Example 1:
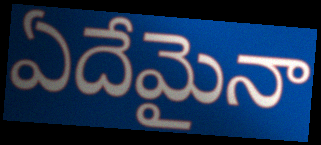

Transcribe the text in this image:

ఏదేమైనా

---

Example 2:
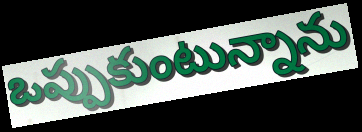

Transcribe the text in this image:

ఒప్పుకుంటున్నాను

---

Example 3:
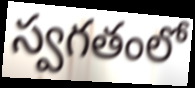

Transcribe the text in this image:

స్వగతంలో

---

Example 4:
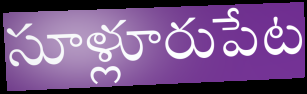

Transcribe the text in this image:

సూళ్లూరుపేట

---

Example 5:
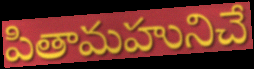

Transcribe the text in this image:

పితామహునిచే